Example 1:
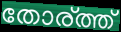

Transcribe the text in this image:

തോര്ത്ത്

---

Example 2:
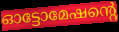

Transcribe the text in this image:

ഓട്ടോമേഷന്റെ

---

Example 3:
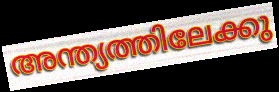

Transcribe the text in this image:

അന്ത്യത്തിലേക്കു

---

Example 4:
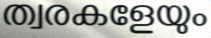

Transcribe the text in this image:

ത്വരകളേയും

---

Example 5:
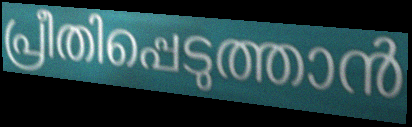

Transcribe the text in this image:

പ്രീതിപ്പെടുത്താൻ